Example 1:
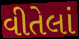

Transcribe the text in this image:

વીતેલાં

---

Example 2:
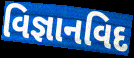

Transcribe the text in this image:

વિજ્ઞાનવિદ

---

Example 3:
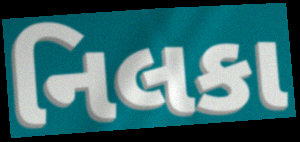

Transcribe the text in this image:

નિલકા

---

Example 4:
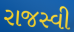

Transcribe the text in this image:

રાજસ્વી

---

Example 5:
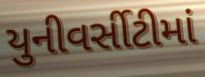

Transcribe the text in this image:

યુનીવર્સીટીમાં